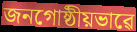
জনগোষ্ঠীয়ভাৱে